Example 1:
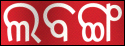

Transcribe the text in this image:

ଲବଙ୍ଗ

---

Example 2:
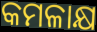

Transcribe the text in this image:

କମଳାକ୍ଷ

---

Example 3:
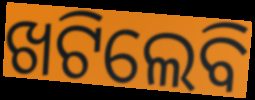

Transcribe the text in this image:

ଖଟିଲେବି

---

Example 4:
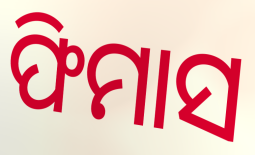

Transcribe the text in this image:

ଫିମାସ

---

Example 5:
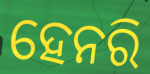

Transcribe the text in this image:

ହେନରି